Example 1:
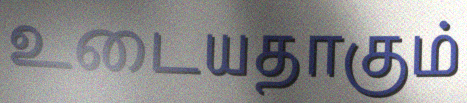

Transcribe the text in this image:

உடையதாகும்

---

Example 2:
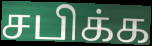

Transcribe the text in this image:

சபிக்க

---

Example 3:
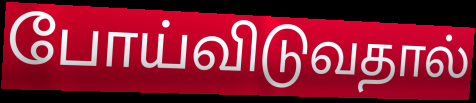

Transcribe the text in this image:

போய்விடுவதால்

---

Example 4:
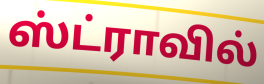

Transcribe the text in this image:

ஸ்ட்ராவில்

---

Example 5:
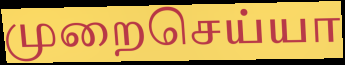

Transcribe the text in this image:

முறைசெய்யா